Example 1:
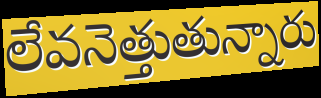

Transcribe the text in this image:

లేవనెత్తుతున్నారు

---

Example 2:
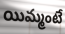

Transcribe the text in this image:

యిమ్మంటే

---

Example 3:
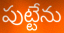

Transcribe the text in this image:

పుట్టేను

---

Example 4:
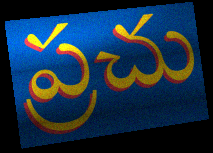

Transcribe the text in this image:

ప్రచు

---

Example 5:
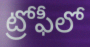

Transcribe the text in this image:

ట్రోఫీలో